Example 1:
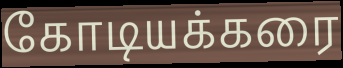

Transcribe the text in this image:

கோடியக்கரை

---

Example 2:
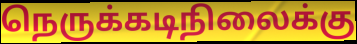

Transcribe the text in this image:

நெருக்கடிநிலைக்கு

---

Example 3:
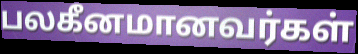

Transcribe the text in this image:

பலகீனமானவர்கள்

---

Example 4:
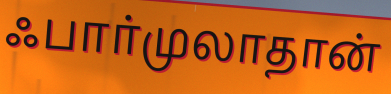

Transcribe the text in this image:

ஃபார்முலாதான்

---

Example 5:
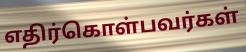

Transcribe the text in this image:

எதிர்கொள்பவர்கள்